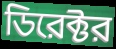
ডিরেক্টর